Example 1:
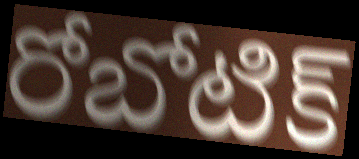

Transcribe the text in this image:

రోబోటిక్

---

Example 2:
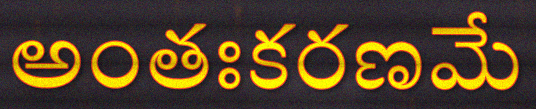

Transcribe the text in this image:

అంతఃకరణమే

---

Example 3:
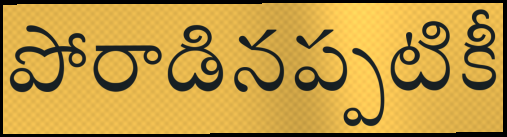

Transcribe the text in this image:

పోరాడినప్పటికీ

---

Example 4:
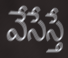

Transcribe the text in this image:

వేసేస్తే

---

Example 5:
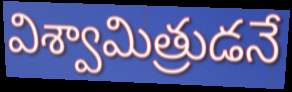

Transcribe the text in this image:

విశ్వామిత్రుడనే